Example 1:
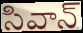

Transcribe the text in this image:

సివాన్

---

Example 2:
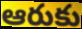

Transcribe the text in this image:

ఆరుకు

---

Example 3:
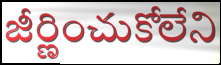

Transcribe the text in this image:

జీర్ణించుకోలేని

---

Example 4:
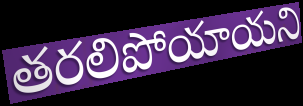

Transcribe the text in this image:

తరలిపోయాయని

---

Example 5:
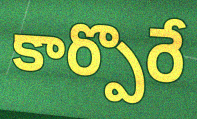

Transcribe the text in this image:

కార్పొరే